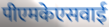
पीएमकेएसवाई